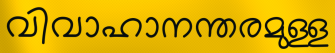
വിവാഹാനന്തരമുള്ള